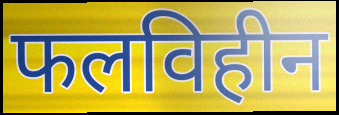
फलविहीन